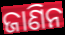
ଜାଣିନ